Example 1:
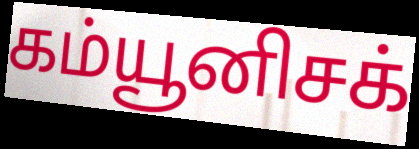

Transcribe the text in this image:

கம்யூனிசக்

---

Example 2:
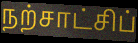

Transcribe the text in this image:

நற்சாட்சிப்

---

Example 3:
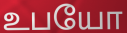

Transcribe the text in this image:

உபயோ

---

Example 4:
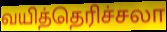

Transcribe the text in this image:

வயித்தெரிச்சலா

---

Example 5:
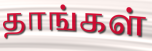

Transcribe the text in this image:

தாங்கள்